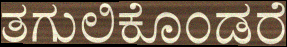
ತಗುಲಿಕೊಂಡರೆ